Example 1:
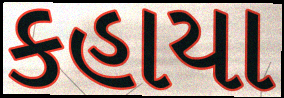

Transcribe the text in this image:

કહાયા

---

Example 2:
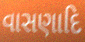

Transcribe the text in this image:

વાસણાદિ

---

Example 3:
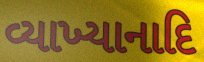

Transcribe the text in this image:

વ્યાખ્યાનાદિ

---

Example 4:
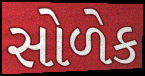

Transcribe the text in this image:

સોળેક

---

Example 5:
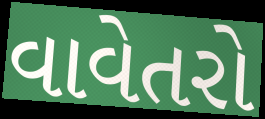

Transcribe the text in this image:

વાવેતરો